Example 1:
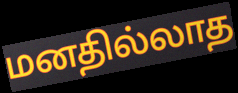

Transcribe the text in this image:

மனதில்லாத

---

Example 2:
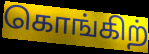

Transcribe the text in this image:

கொங்கிற்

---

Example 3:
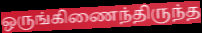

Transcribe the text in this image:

ஒருங்கிணைந்திருந்த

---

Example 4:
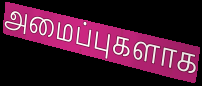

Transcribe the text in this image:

அமைப்புகளாக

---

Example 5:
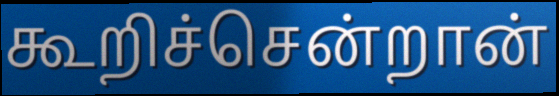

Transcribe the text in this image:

கூறிச்சென்றான்